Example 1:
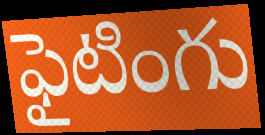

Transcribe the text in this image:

ఫైటింగు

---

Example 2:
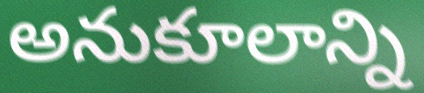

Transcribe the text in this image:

అనుకూలాన్ని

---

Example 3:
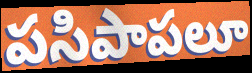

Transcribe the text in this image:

పసిపాపలూ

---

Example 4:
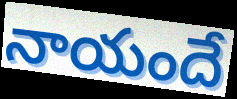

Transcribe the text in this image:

నాయందే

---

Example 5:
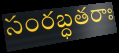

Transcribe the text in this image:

సంరబ్ధతరాః